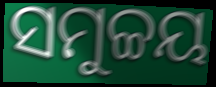
ସମୁଚ୍ଚୟ